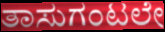
ತಾಸುಗಂಟಲೇ